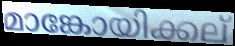
മാങ്കോയിക്കല്